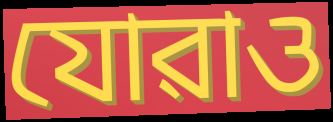
যোৱাও